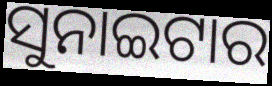
ସୁନାଇଟାର